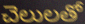
చెలులతో